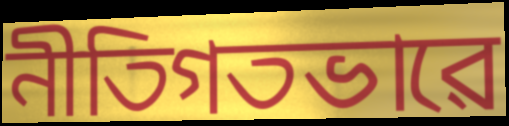
নীতিগতভাৱে